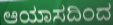
ಆಯಾಸದಿಂದ